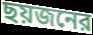
ছয়জনের